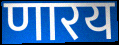
णारय